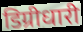
डिग्रीधारी